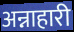
अन्नाहारी